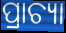
ପ୍ରାଚ୍ୟା